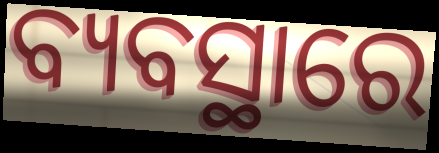
ବ୍ୟବସ୍ଥାରେ